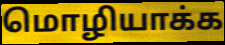
மொழியாக்க